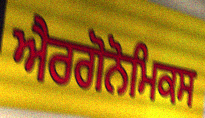
ਐਰਗੋਨੋਮਿਕਸ